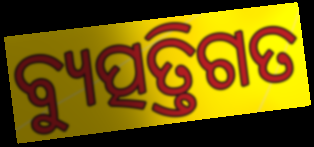
ବ୍ୟୁତ୍ପତ୍ତିଗତ